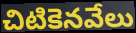
చిటికెనవేలు